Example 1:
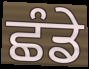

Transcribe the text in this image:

ਛੰਡੇ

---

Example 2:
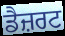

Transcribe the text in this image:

ਡੈਜ਼ਰਟ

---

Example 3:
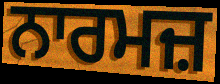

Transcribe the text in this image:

ਨਾਰਮਜ਼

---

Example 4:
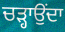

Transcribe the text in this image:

ਚੜ੍ਹਾਉਂਦਾ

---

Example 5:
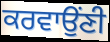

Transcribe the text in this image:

ਕਰਵਾਉਂਣੀ